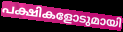
പക്ഷികളോടുമായി